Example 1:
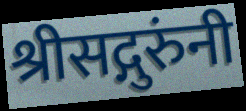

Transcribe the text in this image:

श्रीसद्गुरुंनी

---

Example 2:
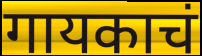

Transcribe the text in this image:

गायकाचं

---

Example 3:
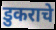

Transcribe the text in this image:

डुकराचे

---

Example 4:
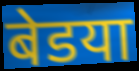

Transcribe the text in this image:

बेडया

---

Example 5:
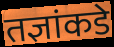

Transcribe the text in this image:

तज्ञांकडे